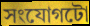
সংযোগটো